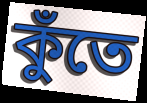
কুঁতে